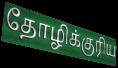
தோழிக்குரிய